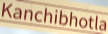
Kanchibhotla